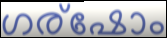
ഗര്ഷോം